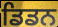
ਡਿਡਨ